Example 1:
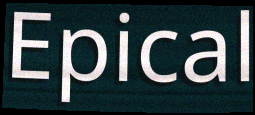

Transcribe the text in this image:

Epical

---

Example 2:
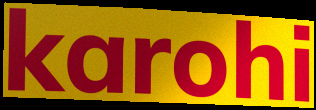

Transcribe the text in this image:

karohi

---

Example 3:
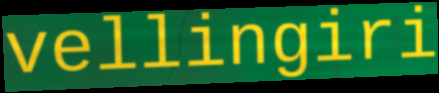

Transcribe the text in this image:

vellingiri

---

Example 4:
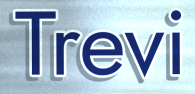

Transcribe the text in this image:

Trevi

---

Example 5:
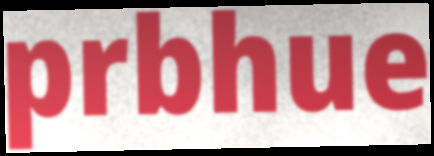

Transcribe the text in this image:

prbhue